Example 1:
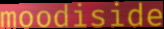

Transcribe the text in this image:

moodiside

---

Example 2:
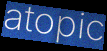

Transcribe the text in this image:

atopic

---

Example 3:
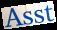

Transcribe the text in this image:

Asst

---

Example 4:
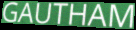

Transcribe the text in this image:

GAUTHAM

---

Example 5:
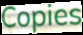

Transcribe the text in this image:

Copies